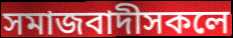
সমাজবাদীসকলে